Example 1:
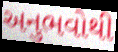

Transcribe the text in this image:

અનુભવોથી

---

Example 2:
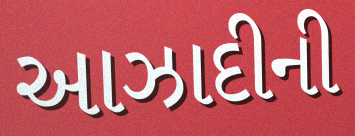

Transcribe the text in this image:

આઝાદીની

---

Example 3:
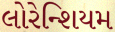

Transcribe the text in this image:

લોરેન્શિયમ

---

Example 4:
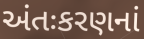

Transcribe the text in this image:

અંતઃકરણનાં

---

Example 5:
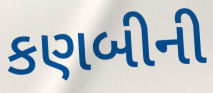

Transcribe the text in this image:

કણબીની